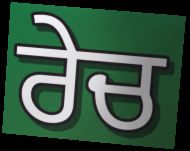
ਰੇਚ